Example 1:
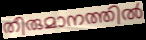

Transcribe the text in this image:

തീരുമാനത്തിൽ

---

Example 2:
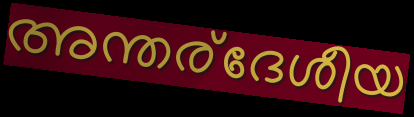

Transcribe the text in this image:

അന്തര്ദേശീയ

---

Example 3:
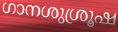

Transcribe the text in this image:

ഗാനശുശ്രൂഷ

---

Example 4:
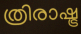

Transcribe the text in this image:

ത്രിരാഷ്ട്ര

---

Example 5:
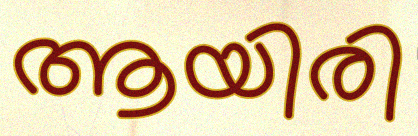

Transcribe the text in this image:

ആയിരി